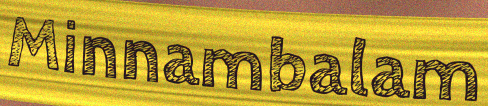
Minnambalam